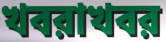
খবরাখবর